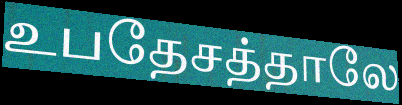
உபதேசத்தாலே